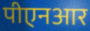
पीएनआर